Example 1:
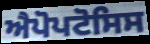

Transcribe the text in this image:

ਐਪੋਪਟੋਸਿਸ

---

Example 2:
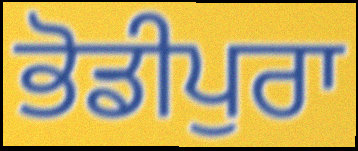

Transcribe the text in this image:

ਭੋਡੀਪੁਰਾ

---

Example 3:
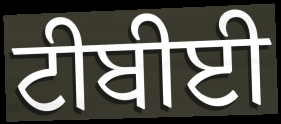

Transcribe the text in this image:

ਟੀਬੀਈ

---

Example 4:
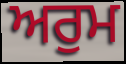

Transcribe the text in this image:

ਅਰੁਮ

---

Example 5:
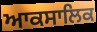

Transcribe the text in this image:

ਆਕਸਾਲਿਕ